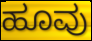
ಹೂವು